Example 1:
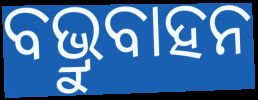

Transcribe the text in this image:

ବଭ୍ରୁବାହନ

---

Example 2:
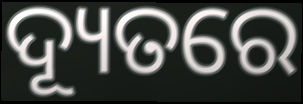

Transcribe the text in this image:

ଦ୍ୟୂତରେ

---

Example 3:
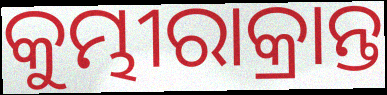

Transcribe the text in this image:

କୁମ୍ଭୀରାକ୍ରାନ୍ତ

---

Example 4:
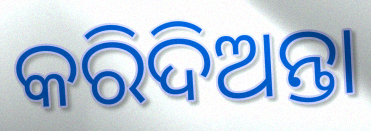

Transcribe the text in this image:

କରିଦିଅନ୍ତା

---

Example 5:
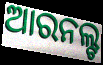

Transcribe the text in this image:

ଆରନଲ୍ଟ